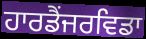
ਹਾਰਡੈਂਜਰਵਿਡਾ